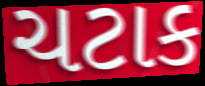
ચટાક